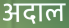
अदाल